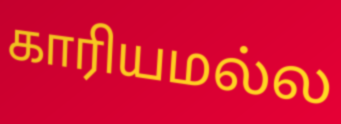
காரியமல்ல